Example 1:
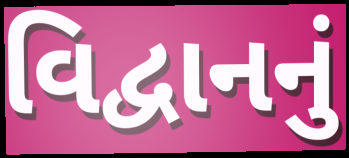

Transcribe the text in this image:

વિદ્વાનનું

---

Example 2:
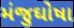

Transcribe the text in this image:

મંજુઘોષા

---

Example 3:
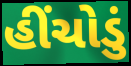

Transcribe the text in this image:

હીંચોડું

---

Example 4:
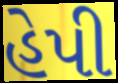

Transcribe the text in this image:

હેપી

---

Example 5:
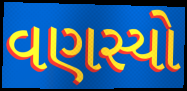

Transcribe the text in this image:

વણસ્યો